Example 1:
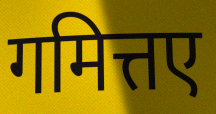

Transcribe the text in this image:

गमित्तए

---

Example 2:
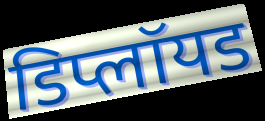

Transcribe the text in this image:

डिप्लॉयड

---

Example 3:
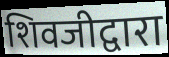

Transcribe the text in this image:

शिवजीद्वारा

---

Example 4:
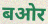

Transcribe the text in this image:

बओर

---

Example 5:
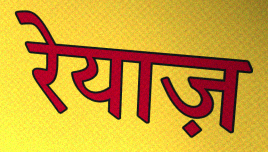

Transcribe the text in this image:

रेयाज़